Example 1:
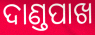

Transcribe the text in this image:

ଦାଣ୍ଡପାଖ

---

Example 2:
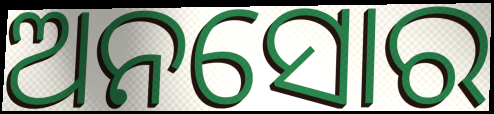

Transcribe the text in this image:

ଅନସୋର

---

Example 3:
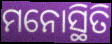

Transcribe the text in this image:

ମନୋସ୍ଥିତି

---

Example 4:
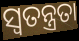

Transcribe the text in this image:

ସ୍ବତନ୍ତ୍ରତା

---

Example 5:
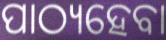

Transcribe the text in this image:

ପାଠ୍ୟହେବା